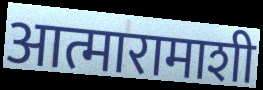
आत्मारामाशी